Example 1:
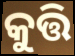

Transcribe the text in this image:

କୁତ୍ତି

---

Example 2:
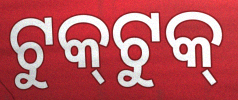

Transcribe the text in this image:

ଟୁକ୍‌ଟୁକ୍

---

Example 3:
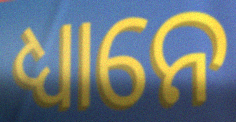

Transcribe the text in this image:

ଧ୍ୟାନେ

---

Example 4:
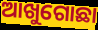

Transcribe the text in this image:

ଆଖୁଗୋଛା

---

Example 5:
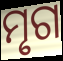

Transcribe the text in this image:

ମୃଗ